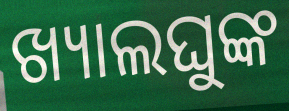
ଖ୍ୟାଲଘୁଙ୍କ